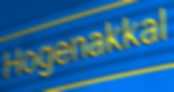
Hogenakkal